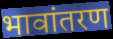
भावांतरण